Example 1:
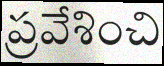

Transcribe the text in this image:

ప్రవేశించి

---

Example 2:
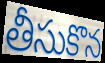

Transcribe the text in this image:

తీసుకొన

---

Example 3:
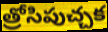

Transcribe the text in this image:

త్రోసిపుచ్చక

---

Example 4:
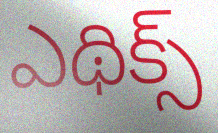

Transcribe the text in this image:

ఎథిక్స్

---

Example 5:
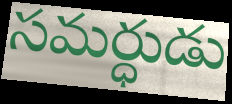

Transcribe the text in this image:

సమర్ధుడు